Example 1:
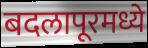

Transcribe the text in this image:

बदलापूरमध्ये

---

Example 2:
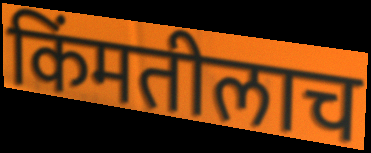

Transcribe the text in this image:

किंमतीलाच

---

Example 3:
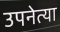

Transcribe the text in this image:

उपनेत्या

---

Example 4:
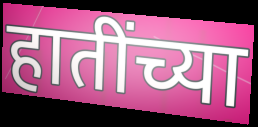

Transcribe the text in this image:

हातींच्या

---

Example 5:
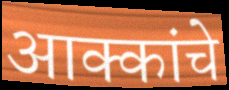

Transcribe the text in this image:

आक्कांचे